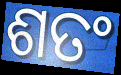
ଶତଂ